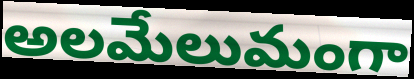
అలమేలుమంగా